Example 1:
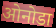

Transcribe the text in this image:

ओनोडा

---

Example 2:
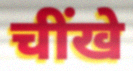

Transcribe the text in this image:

चींखे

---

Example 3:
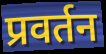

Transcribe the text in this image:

प्रवर्तन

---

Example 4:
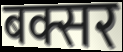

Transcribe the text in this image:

बक्सर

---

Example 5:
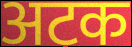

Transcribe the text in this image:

अटक